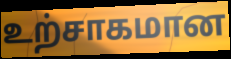
உற்சாகமான